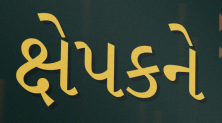
ક્ષેપકને